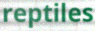
reptiles